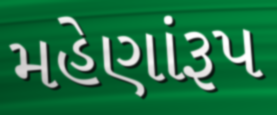
મહેણાંરૂપ